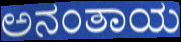
ಅನಂತಾಯ